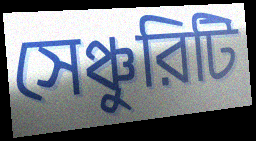
সেঞ্চুরিটি